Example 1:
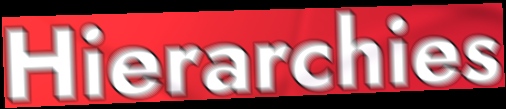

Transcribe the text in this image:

Hierarchies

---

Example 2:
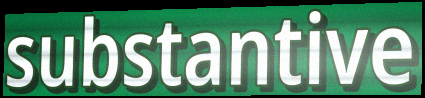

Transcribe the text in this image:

substantive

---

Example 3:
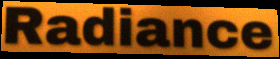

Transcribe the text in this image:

Radiance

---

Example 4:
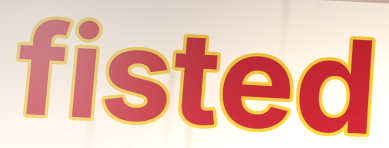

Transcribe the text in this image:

fisted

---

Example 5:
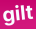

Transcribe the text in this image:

gilt